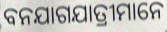
ବନଯାଗଯାତ୍ରୀମାନେ